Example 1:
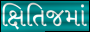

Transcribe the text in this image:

ક્ષિતિજમાં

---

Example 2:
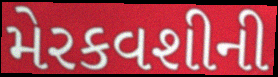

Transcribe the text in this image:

મેરકવશીની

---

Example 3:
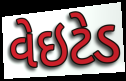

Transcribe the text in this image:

વેઇટેડ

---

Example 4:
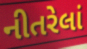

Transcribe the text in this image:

નીતરેલાં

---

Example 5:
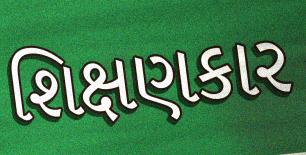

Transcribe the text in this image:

શિક્ષણકાર